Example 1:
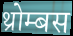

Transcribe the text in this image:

थ्रोम्बस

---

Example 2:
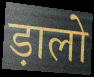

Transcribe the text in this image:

ड़ालो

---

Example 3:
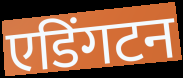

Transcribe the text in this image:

एडिंगटन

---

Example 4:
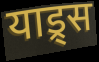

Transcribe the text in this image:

याड्र्स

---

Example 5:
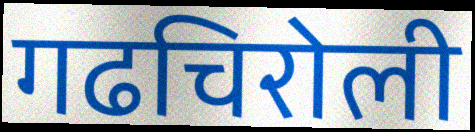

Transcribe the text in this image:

गढचिरोली